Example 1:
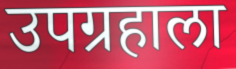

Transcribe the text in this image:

उपग्रहाला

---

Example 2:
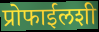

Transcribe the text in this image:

प्रोफाईलशी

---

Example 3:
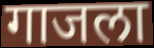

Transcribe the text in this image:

गाजला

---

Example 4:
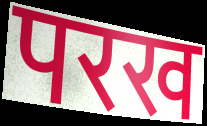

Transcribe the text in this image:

परख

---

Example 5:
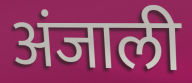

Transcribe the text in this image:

अंजाली